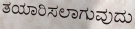
ತಯಾರಿಸಲಾಗುವುದು